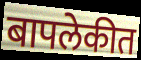
बापलेकीत